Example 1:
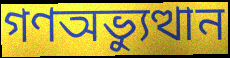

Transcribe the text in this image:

গণঅভ্যুত্থান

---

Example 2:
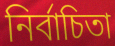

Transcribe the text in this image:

নির্বাচিতা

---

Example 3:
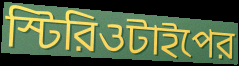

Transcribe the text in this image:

স্টিরিওটাইপের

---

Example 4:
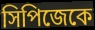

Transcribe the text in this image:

সিপিজেকে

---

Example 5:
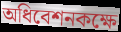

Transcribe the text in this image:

অধিবেশনকক্ষে